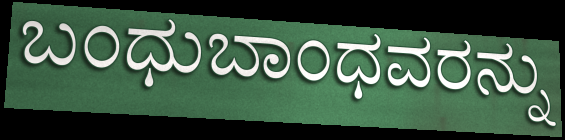
ಬಂಧುಬಾಂಧವರನ್ನು